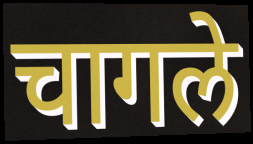
चागले